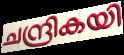
ചന്ദ്രികയി